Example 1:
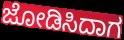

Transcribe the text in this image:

ಜೋಡಿಸಿದಾಗ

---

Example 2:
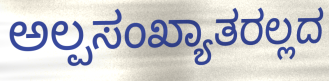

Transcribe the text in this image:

ಅಲ್ಪಸಂಖ್ಯಾತರಲ್ಲದ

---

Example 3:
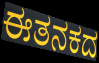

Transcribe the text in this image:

ಈತನಕದ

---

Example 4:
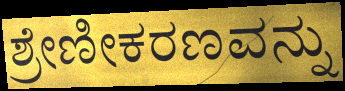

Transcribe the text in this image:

ಶ್ರೇಣೀಕರಣವನ್ನು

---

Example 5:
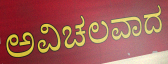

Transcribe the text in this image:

ಅವಿಚಲವಾದ